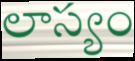
లాస్యం